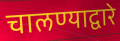
चालण्याद्वारे